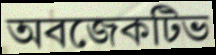
অবজেকটিভ